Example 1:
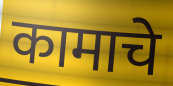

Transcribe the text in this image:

कामाचे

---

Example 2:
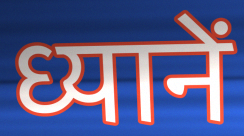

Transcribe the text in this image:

ध्यानें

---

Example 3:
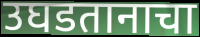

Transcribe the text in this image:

उघडतानाचा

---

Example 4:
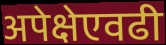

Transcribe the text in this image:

अपेक्षेएवढी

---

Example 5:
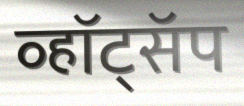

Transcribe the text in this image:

व्हॉट्सॅप